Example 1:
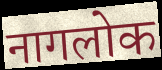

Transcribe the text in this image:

नागलोक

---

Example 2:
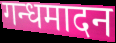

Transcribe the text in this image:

गन्धमादन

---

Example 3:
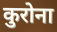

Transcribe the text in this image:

कुरोना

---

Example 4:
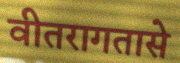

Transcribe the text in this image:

वीतरागतासे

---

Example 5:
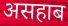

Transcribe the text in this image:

असहाब